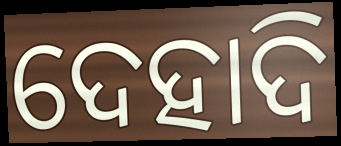
ଦେହାଦି